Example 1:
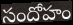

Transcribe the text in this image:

సందోహం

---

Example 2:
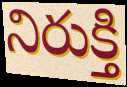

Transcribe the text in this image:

నిరుక్తి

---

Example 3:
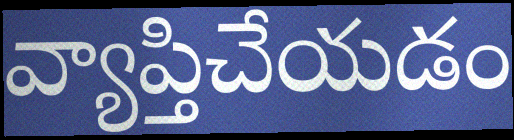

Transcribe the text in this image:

వ్యాప్తిచేయడం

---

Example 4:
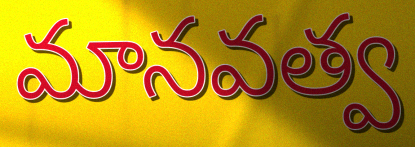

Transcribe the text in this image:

మానవత్వ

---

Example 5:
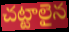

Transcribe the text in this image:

చట్టాలైన